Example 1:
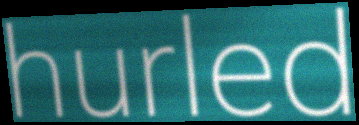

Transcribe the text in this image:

hurled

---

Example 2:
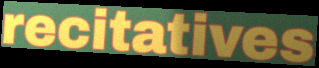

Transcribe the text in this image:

recitatives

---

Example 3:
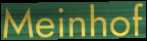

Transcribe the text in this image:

Meinhof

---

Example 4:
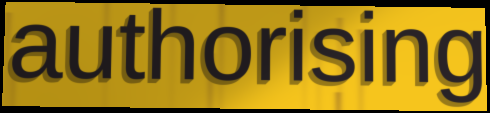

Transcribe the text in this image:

authorising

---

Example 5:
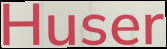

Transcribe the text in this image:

Huser